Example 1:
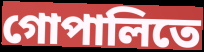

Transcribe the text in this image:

গোপালিতে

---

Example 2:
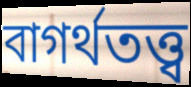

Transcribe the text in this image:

বাগর্থতত্ত্ব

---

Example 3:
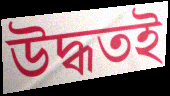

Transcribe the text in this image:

উদ্ধতই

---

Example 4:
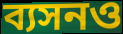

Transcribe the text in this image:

ব্যসনও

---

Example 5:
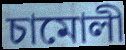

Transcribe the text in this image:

চামোলী